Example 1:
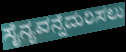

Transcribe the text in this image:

ಸೈನ್ಯವನ್ನೆದುರಿಸಲು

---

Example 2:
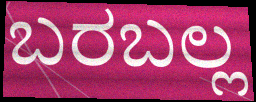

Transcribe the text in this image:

ಬರಬಲ್ಲ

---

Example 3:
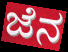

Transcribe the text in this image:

ಜೆನ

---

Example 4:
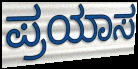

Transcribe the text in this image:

ಪ್ರಯಾಸ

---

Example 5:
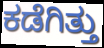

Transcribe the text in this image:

ಕಡೆಗಿತ್ತು